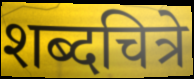
शब्दचित्रे